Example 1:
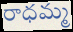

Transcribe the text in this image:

రాధమ్మ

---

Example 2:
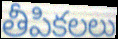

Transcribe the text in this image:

తీపికలలు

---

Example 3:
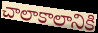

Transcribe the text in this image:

చాలాకాలానికి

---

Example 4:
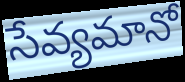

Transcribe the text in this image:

సేవ్యమానో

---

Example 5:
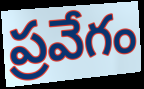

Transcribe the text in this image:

ప్రవేగం